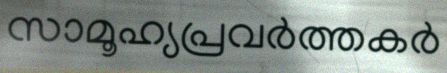
സാമൂഹ്യപ്രവർത്തകർ